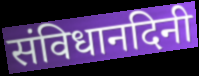
संविधानदिनी